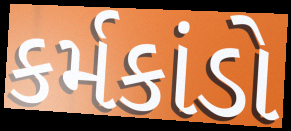
કર્મકાંડો